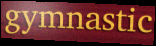
gymnastic